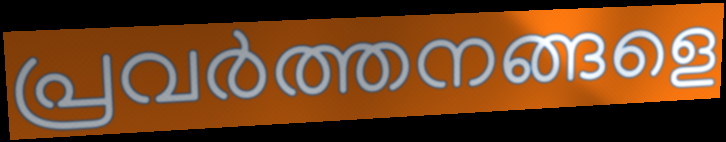
പ്രവർത്തനങ്ങളെ